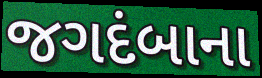
જગદંબાના